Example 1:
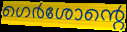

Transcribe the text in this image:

ഗെർശോന്റെ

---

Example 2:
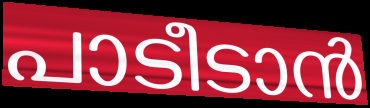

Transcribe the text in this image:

പാടീടാൻ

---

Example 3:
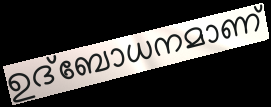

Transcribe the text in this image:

ഉദ്ബോധനമാണ്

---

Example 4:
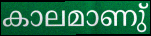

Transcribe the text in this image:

കാലമാണു്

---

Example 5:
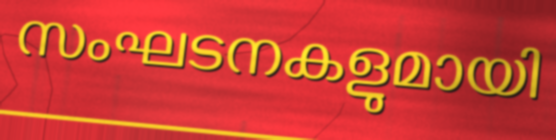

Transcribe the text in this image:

സംഘടനകളുമായി